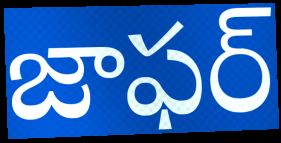
జాఫర్